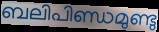
ബലിപിണ്ഡമുണ്ടു